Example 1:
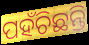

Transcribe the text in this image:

ପହଁଚିଛନ୍ତି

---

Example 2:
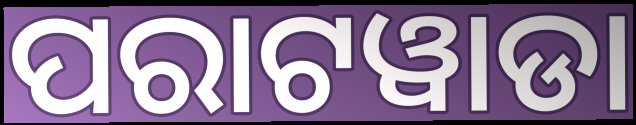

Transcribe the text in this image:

ପରାଟୱାଡା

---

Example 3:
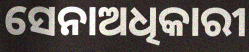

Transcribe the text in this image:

ସେନାଅଧିକାରୀ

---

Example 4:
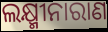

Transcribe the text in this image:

ଲକ୍ଷ୍ମୀନାରାଣ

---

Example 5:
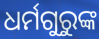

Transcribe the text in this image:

ଧର୍ମଗୁରୁଙ୍କ